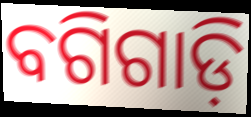
ବଗିଗାଡ଼ି